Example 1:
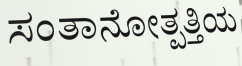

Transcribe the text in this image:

ಸಂತಾನೋತ್ಪತ್ತಿಯ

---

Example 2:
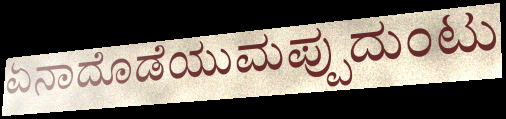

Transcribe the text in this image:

ಏನಾದೊಡೆಯುಮಪ್ಪುದುಂಟು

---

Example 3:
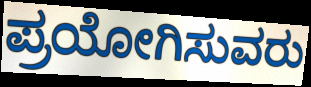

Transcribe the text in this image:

ಪ್ರಯೋಗಿಸುವರು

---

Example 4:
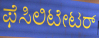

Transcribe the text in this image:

ಫೆಸಿಲಿಟೇಟರ್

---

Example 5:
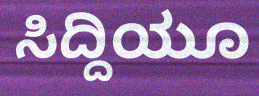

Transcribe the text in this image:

ಸಿದ್ದಿಯೂ